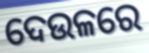
ଦେଉଳରେ